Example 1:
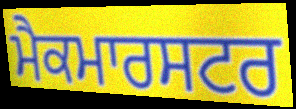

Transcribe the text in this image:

ਮੈਕਮਾਰਸਟਰ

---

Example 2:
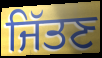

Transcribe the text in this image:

ਜਿੱਤਣ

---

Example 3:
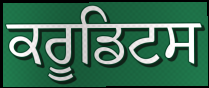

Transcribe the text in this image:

ਕਰੂਡਿਟਸ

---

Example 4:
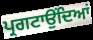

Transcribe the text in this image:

ਪ੍ਰਗਟਾਉਂਦਿਆਂ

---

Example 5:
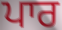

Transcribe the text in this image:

ਪਾਰ